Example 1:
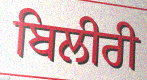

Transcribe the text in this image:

ਬਿਲੀਰੀ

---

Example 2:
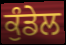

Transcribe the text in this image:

ਕੁੰਡੇਲ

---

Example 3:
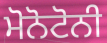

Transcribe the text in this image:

ਮੋਨੋਟੋਨੀ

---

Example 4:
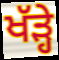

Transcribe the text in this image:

ਖੱੜ੍ਹੇ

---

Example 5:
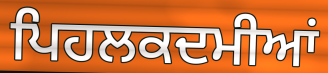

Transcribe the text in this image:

ਪਿਹਲਕਦਮੀਆਂ